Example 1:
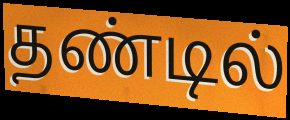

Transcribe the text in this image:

தண்டில்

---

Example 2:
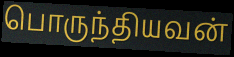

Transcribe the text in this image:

பொருந்தியவன்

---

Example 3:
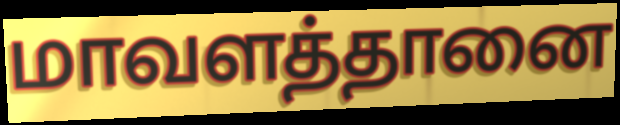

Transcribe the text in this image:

மாவளத்தானை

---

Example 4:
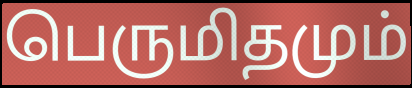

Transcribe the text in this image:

பெருமிதமும்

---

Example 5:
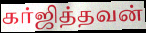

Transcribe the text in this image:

கர்ஜித்தவன்